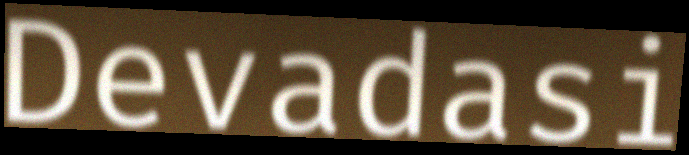
Devadasi